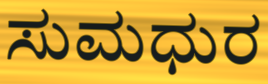
ಸುಮಧುರ